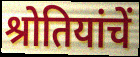
श्रोतियांचें